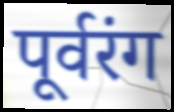
पूर्वरंग